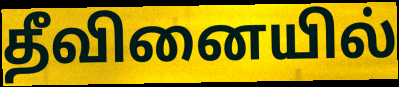
தீவினையில்